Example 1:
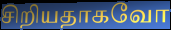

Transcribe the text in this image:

சிறியதாகவோ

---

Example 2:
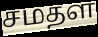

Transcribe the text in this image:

சமதள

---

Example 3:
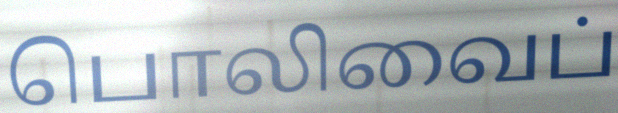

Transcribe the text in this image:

பொலிவைப்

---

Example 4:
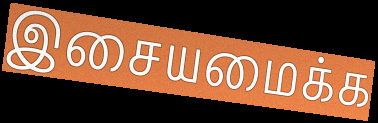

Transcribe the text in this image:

இசையமைக்க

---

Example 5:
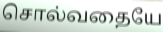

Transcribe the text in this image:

சொல்வதையே